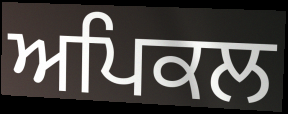
ਅਪਿਕਲ